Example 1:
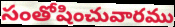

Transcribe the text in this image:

సంతోషించువారము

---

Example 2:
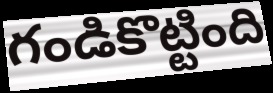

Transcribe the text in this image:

గండికొట్టింది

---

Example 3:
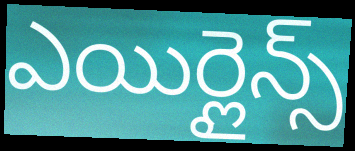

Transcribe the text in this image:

ఎయిర్లైన్స్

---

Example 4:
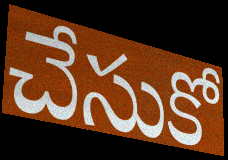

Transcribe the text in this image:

చేసుకో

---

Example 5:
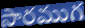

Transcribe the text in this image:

సారముగ